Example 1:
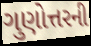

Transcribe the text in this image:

ગુણોત્તરની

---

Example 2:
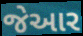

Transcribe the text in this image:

જેઆર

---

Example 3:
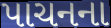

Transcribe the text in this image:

પાચનના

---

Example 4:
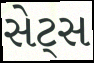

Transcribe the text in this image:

સેટ્સ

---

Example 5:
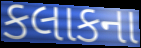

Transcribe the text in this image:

કલાકના